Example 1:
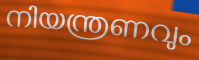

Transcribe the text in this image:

നിയന്ത്രണവും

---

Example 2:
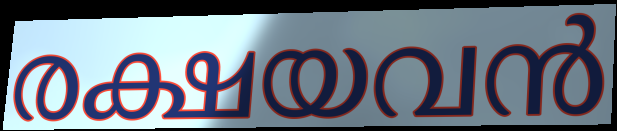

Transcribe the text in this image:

രക്ഷയവൻ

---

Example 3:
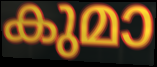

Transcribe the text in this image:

കുമാ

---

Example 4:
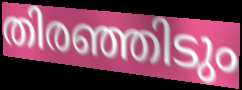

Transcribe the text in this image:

തിരഞ്ഞിടും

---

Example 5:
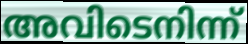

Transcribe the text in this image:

അവിടെനിന്ന്